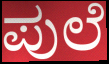
ಪುಲೆ